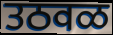
उठवळ